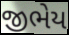
જીભેય